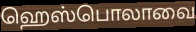
ஹெஸ்பொலாவை